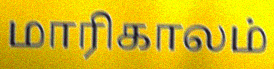
மாரிகாலம்